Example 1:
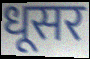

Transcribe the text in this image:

धूसर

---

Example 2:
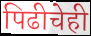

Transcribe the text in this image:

पिढीचेही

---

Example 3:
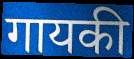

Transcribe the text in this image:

गायकी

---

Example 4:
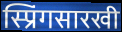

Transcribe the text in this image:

स्प्रिंगसारखी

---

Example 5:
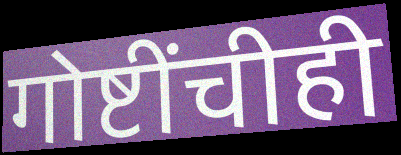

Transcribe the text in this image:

गोष्टींचीही